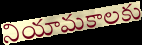
నియామకాలకు